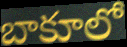
బాకూలో